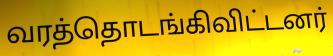
வரத்தொடங்கிவிட்டனர்